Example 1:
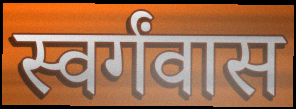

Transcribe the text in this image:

स्वर्गंवास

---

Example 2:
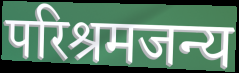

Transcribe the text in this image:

परिश्रमजन्य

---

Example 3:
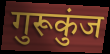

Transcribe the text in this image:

गुरूकुंज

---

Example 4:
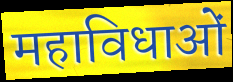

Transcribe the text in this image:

महाविधाओं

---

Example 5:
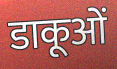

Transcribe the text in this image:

डाकूओं